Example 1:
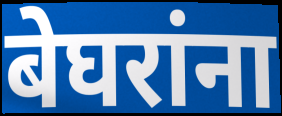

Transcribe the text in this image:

बेघरांना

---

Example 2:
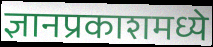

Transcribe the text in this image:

ज्ञानप्रकाशमध्ये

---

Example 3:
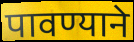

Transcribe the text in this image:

पावण्याने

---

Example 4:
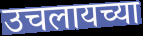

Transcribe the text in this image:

उचलायच्या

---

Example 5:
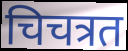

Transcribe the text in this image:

चिचत्रत